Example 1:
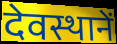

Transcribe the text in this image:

देवस्थानें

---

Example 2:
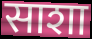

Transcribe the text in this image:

साशा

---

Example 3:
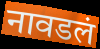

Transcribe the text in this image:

नावडलं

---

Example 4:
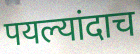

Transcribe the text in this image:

पयल्यांदाच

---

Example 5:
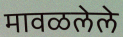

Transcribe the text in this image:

मावळलेले